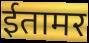
ईतामर